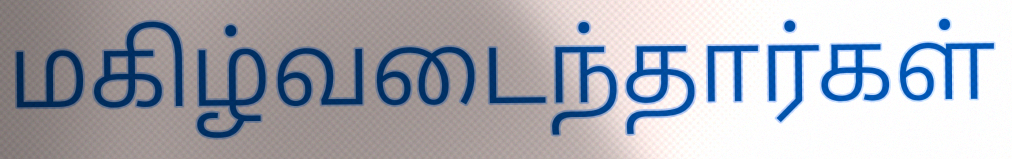
மகிழ்வடைந்தார்கள்